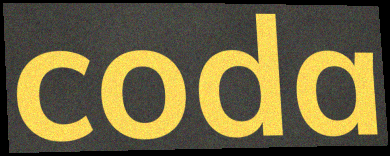
coda